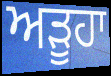
ਅੜੂਹਾ